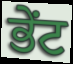
ਭੇਂਟ